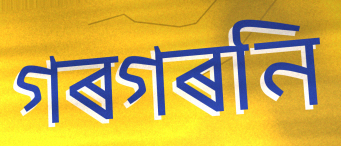
গৰগৰনি